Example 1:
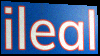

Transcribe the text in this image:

ileal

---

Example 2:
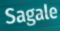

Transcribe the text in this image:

Sagale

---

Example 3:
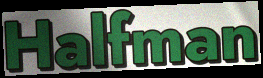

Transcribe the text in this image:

Halfman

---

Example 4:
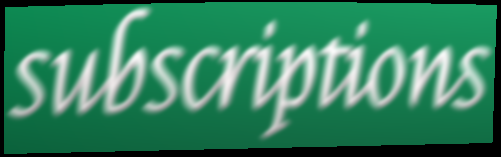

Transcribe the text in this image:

subscriptions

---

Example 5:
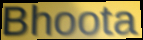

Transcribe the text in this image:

Bhoota